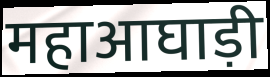
महाआघाड़ी